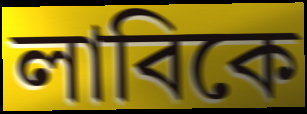
লাবিকে